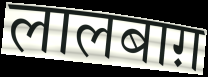
लालबाग़